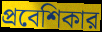
প্রবেশিকার